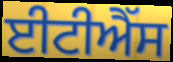
ਈਟੀਐੱਸ